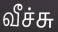
வீச்சு